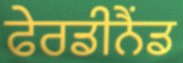
ਫੇਰਡੀਨੈਂਡ